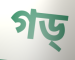
গড্